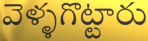
వెళ్ళగొట్టారు